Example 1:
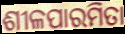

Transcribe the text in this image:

ଶୀଳପାରମିତା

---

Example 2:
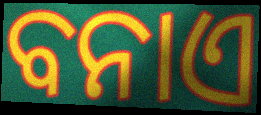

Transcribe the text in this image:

ବନାଏ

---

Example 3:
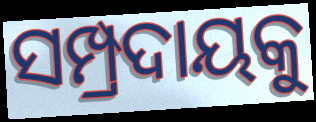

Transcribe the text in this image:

ସମ୍ପ୍ରଦାୟକୁ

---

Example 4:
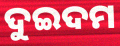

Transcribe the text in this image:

ଦୁଇଦମ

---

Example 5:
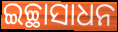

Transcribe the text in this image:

ଇଚ୍ଛାସାଧନ